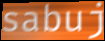
sabuj